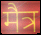
मैत्र